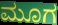
ಮೂಗ